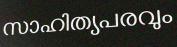
സാഹിത്യപരവും